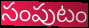
సంపుటం